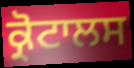
ਕ੍ਰੋਟਾਲਸ